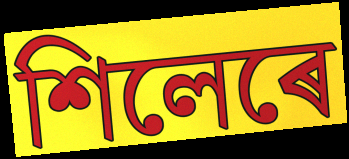
শিলেৰে